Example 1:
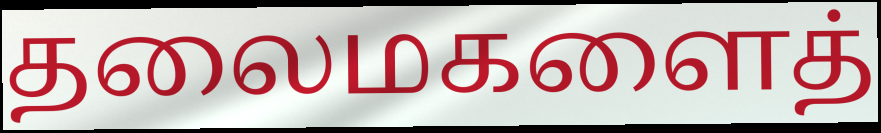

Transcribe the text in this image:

தலைமகளைத்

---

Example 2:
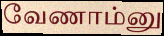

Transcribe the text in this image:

வேணாம்னு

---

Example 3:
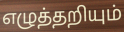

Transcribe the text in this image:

எழுத்தறியும்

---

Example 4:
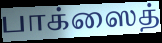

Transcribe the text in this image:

பாக்ஸைத்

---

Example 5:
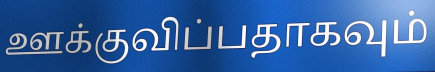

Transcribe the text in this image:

ஊக்குவிப்பதாகவும்